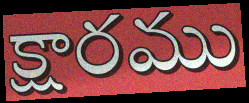
క్షారము